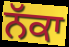
ਨੱਕਾ